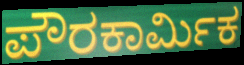
ಪೌರಕಾರ್ಮಿಕ